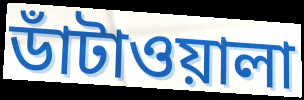
ডাঁটাওয়ালা